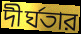
দীর্ঘতার